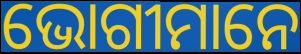
ଭୋଗୀମାନେ